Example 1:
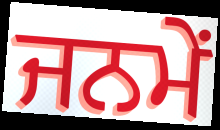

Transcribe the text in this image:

ਜਨਮੇਂ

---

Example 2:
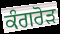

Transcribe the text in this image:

ਕੰਗਰੋੜ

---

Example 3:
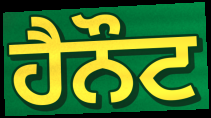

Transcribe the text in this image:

ਹੈਨੌਟ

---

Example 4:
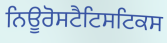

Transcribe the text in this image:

ਨਿਊਰੋਸਟੈਟਿਸਟਿਕਸ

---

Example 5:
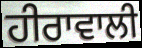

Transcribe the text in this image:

ਹੀਰਾਵਾਲੀ